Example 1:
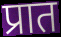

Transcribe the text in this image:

प्रात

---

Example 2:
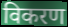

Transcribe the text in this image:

विकरण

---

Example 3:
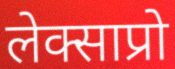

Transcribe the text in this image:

लेक्साप्रो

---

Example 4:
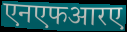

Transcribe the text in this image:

एनएफआरए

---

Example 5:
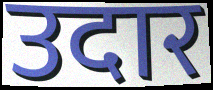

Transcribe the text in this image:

उदार